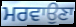
ਮਰਵਾਉਣਾ